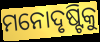
ମନୋଦୃଷ୍ଟିକୁ